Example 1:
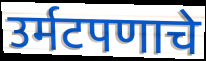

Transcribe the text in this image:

उर्मटपणाचे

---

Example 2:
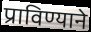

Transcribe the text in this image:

प्राविण्याने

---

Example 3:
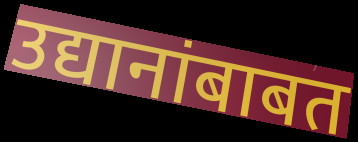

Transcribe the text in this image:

उद्यानांबाबत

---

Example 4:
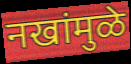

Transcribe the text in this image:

नखांमुळे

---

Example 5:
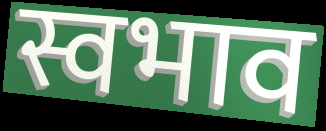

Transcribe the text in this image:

स्वभाव